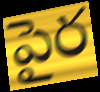
పైర